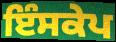
ਇੰਸਕੇਪ